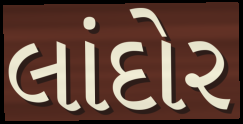
લાંદોર